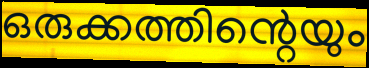
ഒരുക്കത്തിന്റെയും